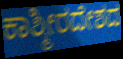
ಕಾಶ್ಮೀರದೇಶದ